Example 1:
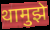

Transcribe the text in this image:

थामुझे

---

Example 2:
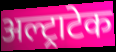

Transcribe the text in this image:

अल्‍ट्राटेक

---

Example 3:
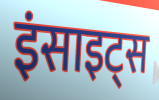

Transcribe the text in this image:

इंसाइट्स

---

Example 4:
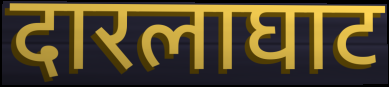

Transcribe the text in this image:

दारलाघाट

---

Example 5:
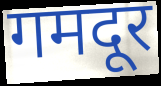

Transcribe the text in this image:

गमदूर